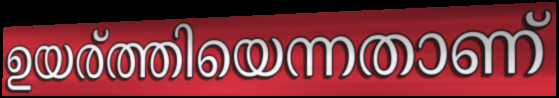
ഉയര്ത്തിയെന്നതാണ്